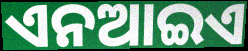
ଏନଆଇଏ